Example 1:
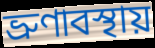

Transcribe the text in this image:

ভ্রুণাবস্থায়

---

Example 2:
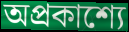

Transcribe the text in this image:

অপ্রকাশ্যে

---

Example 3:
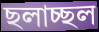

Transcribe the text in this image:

ছলাচ্ছল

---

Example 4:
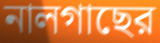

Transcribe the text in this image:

নালগাছের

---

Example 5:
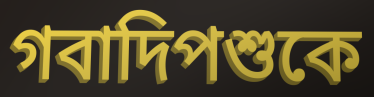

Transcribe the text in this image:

গবাদিপশুকে